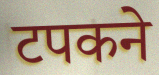
टपकने